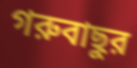
গরুবাছুর